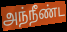
அந்நீண்ட